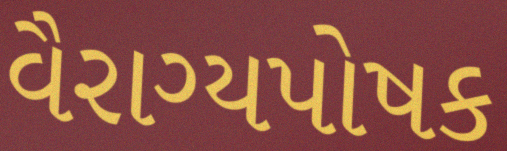
વૈરાગ્યપોષક